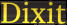
Dixit